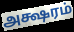
அக்ஷரம்